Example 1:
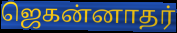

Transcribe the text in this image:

ஜெகன்னாதர்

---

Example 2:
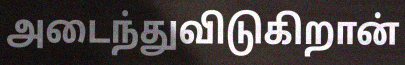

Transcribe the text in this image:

அடைந்துவிடுகிறான்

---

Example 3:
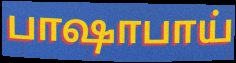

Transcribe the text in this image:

பாஷாபாய்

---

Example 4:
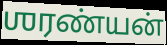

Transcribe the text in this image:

ஶரண்யன்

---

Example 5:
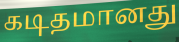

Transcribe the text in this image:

கடிதமானது